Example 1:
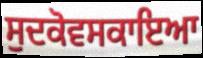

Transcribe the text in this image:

ਸੁਦਕੋਵਸਕਾਇਆ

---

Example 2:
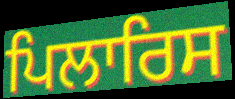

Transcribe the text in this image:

ਪਿਲਾਰਿਸ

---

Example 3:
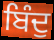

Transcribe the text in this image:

ਬਿੰਦੁ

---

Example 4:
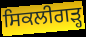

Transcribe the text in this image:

ਸਿਕਲੀਗੜ੍ਹ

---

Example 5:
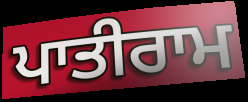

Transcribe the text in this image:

ਪਾਤੀਰਾਮ